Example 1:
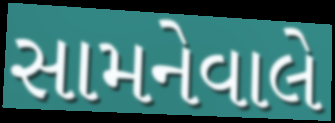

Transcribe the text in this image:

સામનેવાલે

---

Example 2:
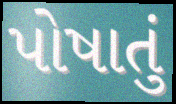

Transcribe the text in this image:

પોષાતું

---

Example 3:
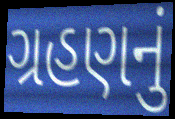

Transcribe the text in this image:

ગ્રહણનું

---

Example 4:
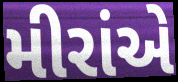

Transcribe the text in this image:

મીરાંએ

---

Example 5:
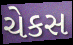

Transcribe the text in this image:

ચેકસ